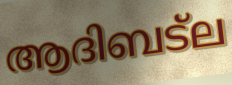
ആദിബട്ല